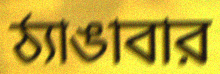
ঠ্যাঙাবার